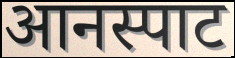
आनस्पाट